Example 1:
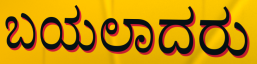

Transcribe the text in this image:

ಬಯಲಾದರು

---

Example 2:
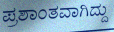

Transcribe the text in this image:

ಪ್ರಶಾಂತವಾಗಿದ್ದು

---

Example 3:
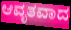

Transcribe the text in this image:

ಆವೃತವಾದ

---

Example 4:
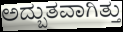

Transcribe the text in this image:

ಅದ್ಬುತವಾಗಿತ್ತು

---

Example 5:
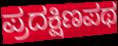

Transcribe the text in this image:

ಪ್ರದಕ್ಷಿಣಪಥ